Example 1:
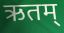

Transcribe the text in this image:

ऋतम्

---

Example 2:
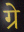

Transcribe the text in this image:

ग्रे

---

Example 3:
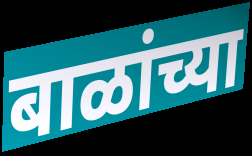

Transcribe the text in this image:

बाळांच्या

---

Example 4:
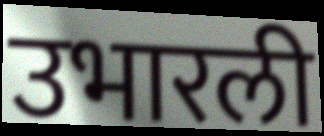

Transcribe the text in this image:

उभारली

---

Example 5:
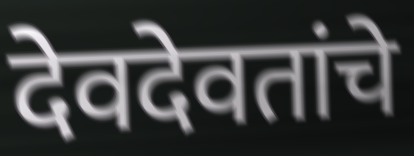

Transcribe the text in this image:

देवदेवतांचे